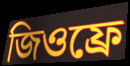
জিওফ্ৰে